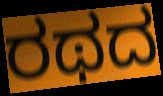
ರಥದ